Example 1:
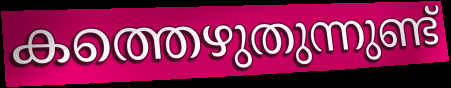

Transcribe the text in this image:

കത്തെഴുതുന്നുണ്ട്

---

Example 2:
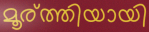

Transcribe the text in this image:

മൂര്ത്തിയായി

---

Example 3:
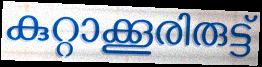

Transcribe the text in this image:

കുറ്റാക്കൂരിരുട്ട്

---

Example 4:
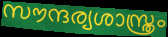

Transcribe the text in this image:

സൗന്ദര്യശാസ്ത്രം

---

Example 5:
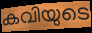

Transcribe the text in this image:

കവിയുടെ